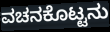
ವಚನಕೊಟ್ಟನು